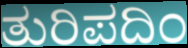
ತುರಿಪದಿಂ